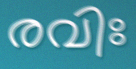
രവിഃ